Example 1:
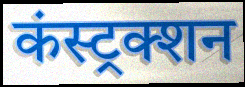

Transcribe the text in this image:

कंस्‍ट्रक्‍शन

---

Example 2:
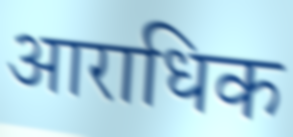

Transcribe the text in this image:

आराधिक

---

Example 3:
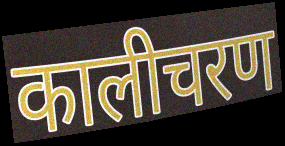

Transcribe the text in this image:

कालीचरण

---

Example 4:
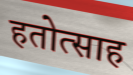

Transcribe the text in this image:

हतोत्साह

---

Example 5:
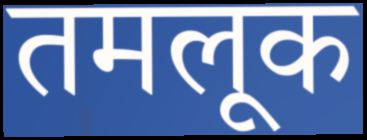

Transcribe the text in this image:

तमलूक